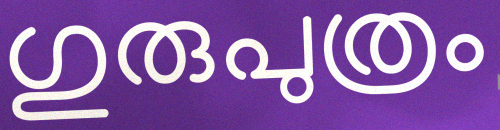
ഗുരുപുത്രം